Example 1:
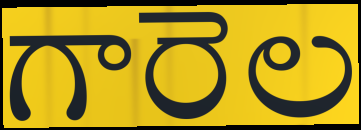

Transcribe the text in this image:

గారెల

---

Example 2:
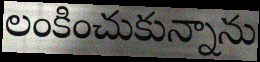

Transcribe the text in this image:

లంకించుకున్నాను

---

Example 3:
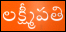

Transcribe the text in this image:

లక్ష్మీపతి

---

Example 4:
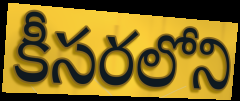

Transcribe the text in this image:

కీసరలోని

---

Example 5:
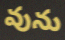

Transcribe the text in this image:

వును